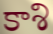
కాశి